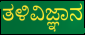
ತಳಿವಿಜ್ಞಾನ